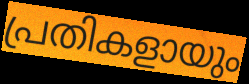
പ്രതികളായും